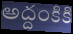
అద్దంకికి